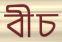
বীচ